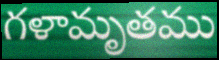
గళామృతము